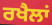
ਰਖੈਲਾਂ